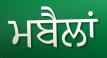
ਮਬੈਲਾਂ